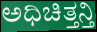
ಅಧಿಚಿತ್ತನ್ತಿ